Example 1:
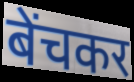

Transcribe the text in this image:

बेंचकर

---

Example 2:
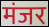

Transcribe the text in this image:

मंजर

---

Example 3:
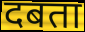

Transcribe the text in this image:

दबता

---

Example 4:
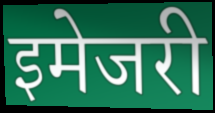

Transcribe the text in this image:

इमेजरी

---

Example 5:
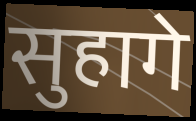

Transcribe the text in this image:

सुहागे